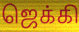
ஜெக்கி